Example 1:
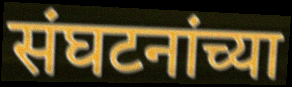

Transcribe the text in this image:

संघटनांच्या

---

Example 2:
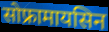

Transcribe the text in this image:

सोफ्रामायसिन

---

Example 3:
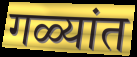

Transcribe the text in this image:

गळ्यांत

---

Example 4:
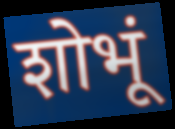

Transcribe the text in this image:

शोभूं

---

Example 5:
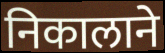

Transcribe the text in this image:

निकालाने